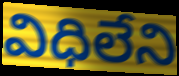
విధిలేని